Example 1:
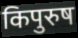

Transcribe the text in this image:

किपुरुष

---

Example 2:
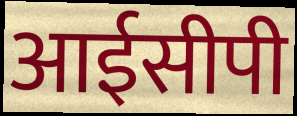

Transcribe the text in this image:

आईसीपी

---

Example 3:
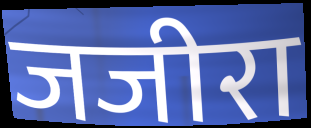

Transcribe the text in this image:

जजीरा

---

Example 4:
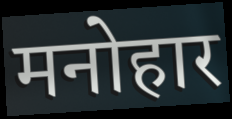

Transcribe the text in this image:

मनोहार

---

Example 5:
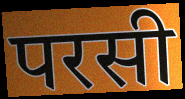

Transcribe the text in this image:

परसी